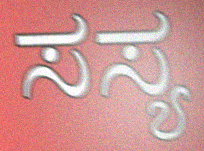
ಸಸ್ಯ